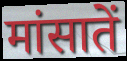
मांसातें